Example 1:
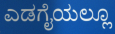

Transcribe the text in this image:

ಎಡಗೈಯಲ್ಲೂ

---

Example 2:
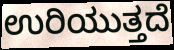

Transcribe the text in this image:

ಉರಿಯುತ್ತದೆ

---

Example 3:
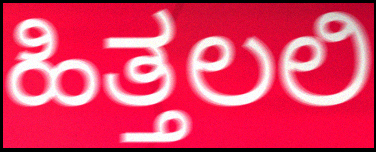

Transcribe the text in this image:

ಹಿತ್ತಲಲಿ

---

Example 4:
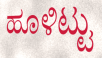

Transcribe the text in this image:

ಹೂಳಿಟ್ಟು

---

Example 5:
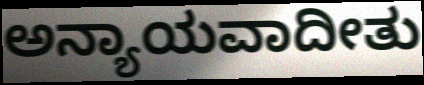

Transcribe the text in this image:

ಅನ್ಯಾಯವಾದೀತು